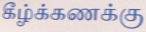
கீழ்க்கணக்கு